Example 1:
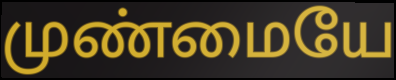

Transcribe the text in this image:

முண்மையே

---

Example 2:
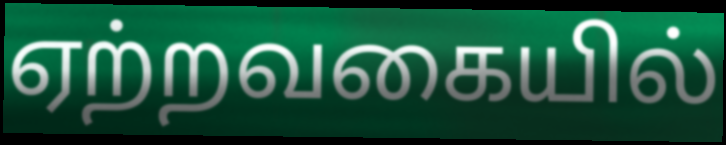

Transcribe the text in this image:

ஏற்றவகையில்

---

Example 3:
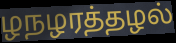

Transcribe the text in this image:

ழநழரத்தழல்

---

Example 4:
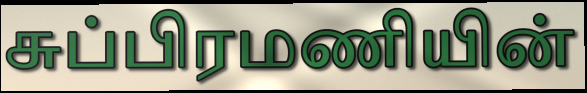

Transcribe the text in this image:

சுப்பிரமணியின்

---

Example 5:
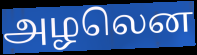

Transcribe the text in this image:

அழலென